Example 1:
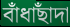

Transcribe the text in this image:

বাঁধাছাঁদা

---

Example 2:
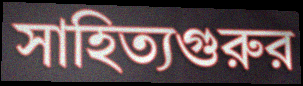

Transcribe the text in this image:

সাহিত্যগুরুর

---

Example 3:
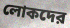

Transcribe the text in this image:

লোকদের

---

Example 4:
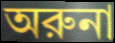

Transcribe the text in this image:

অরুনা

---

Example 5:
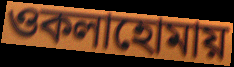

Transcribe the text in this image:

ওকলাহোমায়